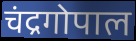
चंद्रगोपाल